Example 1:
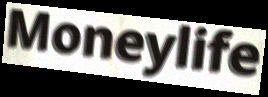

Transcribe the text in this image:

Moneylife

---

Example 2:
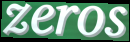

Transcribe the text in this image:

zeros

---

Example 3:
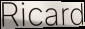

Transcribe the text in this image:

Ricard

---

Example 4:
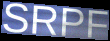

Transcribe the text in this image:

SRPF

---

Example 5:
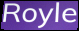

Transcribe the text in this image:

Royle